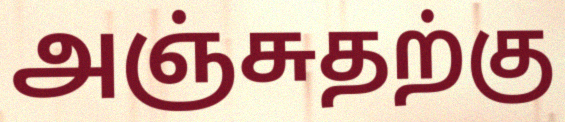
அஞ்சுதற்கு